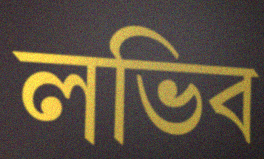
লভিব